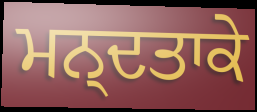
ਮਨ੍ਦਤਾਕੇ